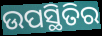
ଉପସ୍ଥିତିର